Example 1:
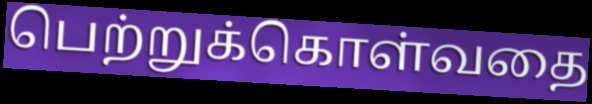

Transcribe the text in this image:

பெற்றுக்கொள்வதை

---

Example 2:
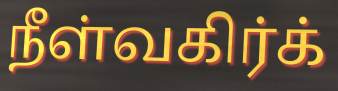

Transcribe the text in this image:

நீள்வகிர்க்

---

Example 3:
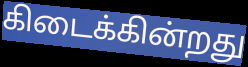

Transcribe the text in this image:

கிடைக்கின்றது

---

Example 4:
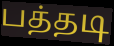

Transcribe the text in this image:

பத்தடி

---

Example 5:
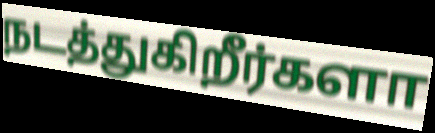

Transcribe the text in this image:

நடத்துகிறீர்களா